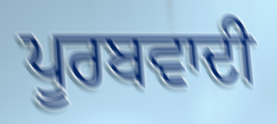
ਪੂਰਬਵਾਦੀ